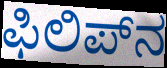
ಫಿಲಿಪ್‌ನ